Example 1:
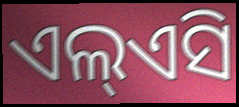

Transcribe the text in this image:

ଏଲ୍ଏସି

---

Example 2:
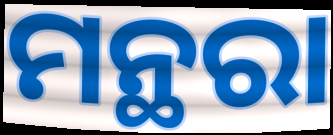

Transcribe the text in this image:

ମନ୍ଥରା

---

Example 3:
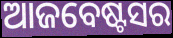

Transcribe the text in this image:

ଆଜବେଷ୍ଟସର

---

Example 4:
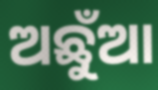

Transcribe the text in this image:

ଅଛୁଁଆ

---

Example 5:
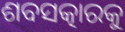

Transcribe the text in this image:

ଶବସତ୍କାରକୁ